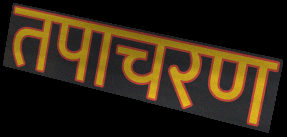
तपाचरण